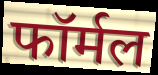
फॉर्मल